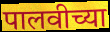
पालवीच्या